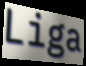
Liga